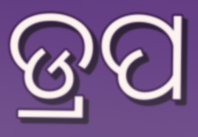
ଡ୍ରପ